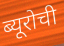
ब्यूरोची